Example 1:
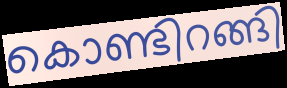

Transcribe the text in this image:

കൊണ്ടിറങ്ങി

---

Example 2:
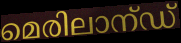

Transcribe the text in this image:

മെരിലാന്ഡ്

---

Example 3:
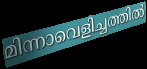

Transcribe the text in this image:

മിന്നാവെളിച്ചത്തിൽ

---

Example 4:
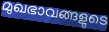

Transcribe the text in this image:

മുഖഭാവങ്ങളുടെ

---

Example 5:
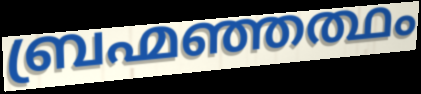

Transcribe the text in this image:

ബ്രഹ്മഞ്ഞത്ഥം